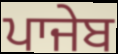
ਪਾਜੇਬ